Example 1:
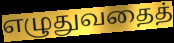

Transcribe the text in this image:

எழுதுவதைத்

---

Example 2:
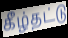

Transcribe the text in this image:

கீழ்தட்டு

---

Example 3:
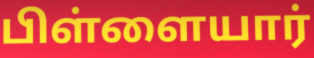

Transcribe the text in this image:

பிள்ளையார்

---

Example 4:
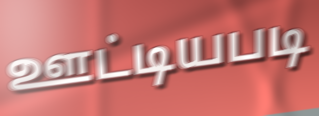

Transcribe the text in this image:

ஊட்டியபடி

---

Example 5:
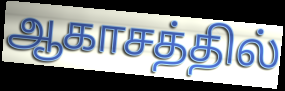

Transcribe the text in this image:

ஆகாசத்தில்